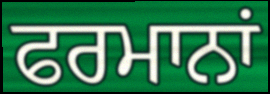
ਫਰਮਾਨਾਂ